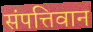
संपत्तिवान